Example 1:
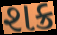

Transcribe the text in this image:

શક્ર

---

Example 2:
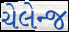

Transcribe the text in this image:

ચેલેન્જ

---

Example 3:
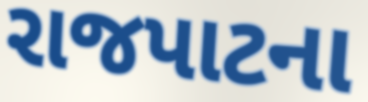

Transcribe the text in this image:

રાજપાટના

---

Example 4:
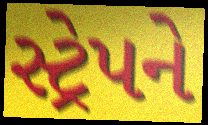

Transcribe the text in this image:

સ્ટ્રેપને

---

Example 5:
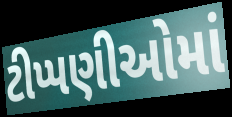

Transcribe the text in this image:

ટીપ્પણીઓમાં